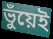
ভুঁয়েই